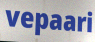
vepaari